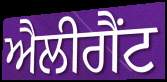
ਐਲੀਗੈਂਟ